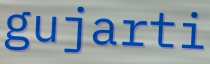
gujarti